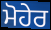
ਮੋਹੇਰ